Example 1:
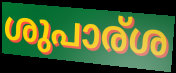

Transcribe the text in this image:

ശുപാര്ശ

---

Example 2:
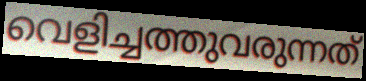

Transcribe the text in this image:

വെളിച്ചത്തുവരുന്നത്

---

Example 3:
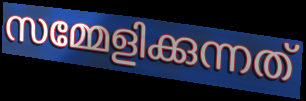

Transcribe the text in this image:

സമ്മേളിക്കുന്നത്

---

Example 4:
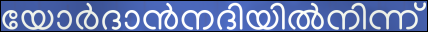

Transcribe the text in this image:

യോർദാൻനദിയിൽനിന്ന്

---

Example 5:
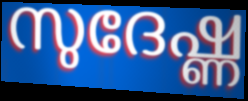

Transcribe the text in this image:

സുദേഷ്ണ